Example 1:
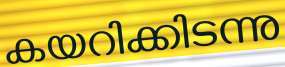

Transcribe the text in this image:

കയറിക്കിടന്നു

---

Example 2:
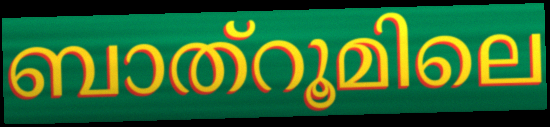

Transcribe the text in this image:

ബാത്റൂമിലെ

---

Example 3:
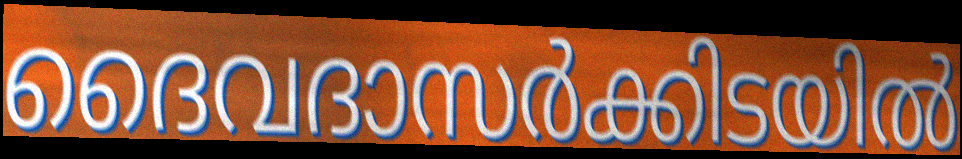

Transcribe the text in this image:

ദൈവദാസർക്കിടയിൽ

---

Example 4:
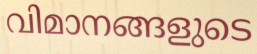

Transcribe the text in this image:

വിമാനങ്ങളുടെ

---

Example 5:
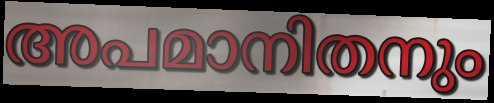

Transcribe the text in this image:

അപമാനിതനും